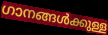
ഗാനങ്ങൾക്കുള്ള